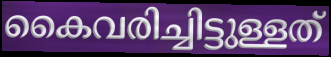
കൈവരിച്ചിട്ടുള്ളത്